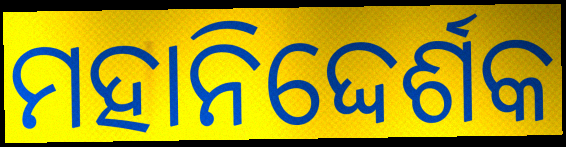
ମହାନିଦ୍ଦେର୍ଶକ